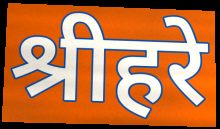
श्रीहरे